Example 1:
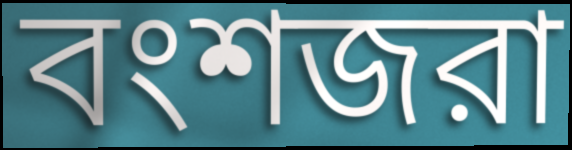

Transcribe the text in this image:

বংশজরা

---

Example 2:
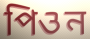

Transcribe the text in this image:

পিওন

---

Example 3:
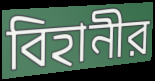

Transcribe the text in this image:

বিহানীর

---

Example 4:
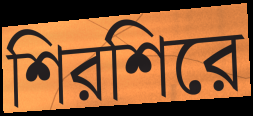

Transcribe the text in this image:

শিরশিরে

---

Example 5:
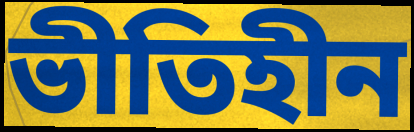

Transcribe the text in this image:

ভীতিহীন